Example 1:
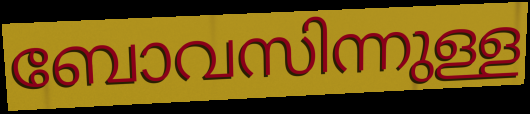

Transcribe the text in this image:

ബോവസിന്നുള്ള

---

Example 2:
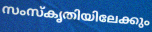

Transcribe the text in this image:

സംസ്കൃതിയിലേക്കും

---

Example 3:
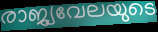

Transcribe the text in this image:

രാജ്യവേലയുടെ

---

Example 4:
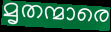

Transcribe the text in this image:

മൃതന്മാരെ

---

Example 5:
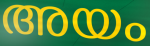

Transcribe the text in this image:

അയം